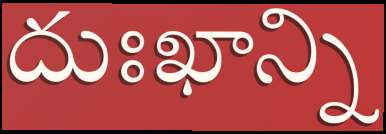
దుఃఖాన్ని